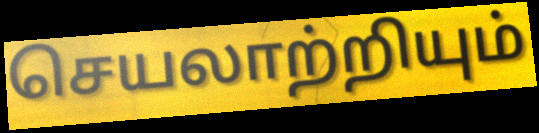
செயலாற்றியும்